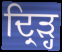
ਦ੍ਰਿੜ੍ਹ